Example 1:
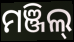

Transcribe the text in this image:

ମଞ୍ଜିଲ୍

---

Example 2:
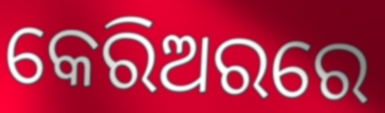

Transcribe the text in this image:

କେରିଅରରେ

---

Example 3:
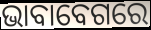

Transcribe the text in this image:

ଭାବାବେଗରେ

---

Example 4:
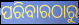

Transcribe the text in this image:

ପରିବାରଠାରୁ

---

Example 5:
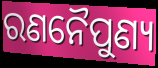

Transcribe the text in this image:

ରଣନୈପୁଣ୍ୟ